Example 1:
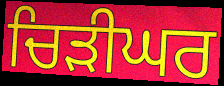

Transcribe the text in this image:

ਚਿੜੀਘਰ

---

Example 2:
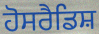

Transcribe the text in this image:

ਹੋਸਰੈਡਿਸ਼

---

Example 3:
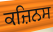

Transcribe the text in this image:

ਕਜ਼ਿਨਸ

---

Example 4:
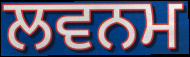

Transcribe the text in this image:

ਲਵਨਮ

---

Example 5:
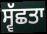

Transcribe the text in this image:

ਸ੍ਵੱਛਤਾ